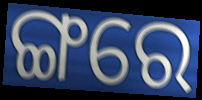
ଙ୍ଗରେ